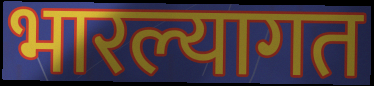
भारल्यागत